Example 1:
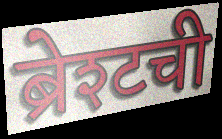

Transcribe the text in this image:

ब्रेश्टची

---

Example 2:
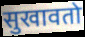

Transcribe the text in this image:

सुखावतो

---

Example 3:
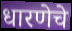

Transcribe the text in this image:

धारणेचे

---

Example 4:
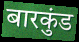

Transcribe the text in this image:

बारकुंड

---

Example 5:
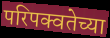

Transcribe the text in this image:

परिपक्वतेच्या